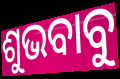
ଶୁଭବାବୁ